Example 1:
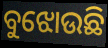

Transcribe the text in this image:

ବୁଝୋଉଛି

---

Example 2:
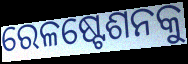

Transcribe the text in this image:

ରେଳଷ୍ଟେଶନକୁ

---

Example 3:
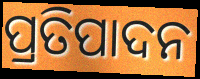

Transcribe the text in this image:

ପ୍ରତିପାଦନ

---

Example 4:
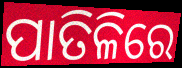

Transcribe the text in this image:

ପାତିଳିରେ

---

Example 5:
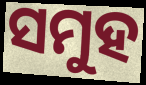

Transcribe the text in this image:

ସମୁହ